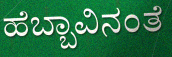
ಹೆಬ್ಬಾವಿನಂತೆ